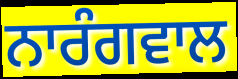
ਨਾਰੰਗਵਾਲ